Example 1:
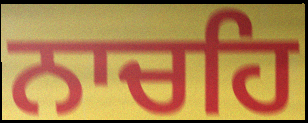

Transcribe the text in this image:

ਨਾਚਹਿ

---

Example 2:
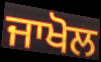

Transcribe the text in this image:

ਜਾਖੋਲ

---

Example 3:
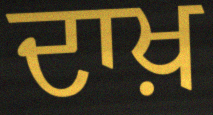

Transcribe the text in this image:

ਦਾਖ਼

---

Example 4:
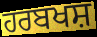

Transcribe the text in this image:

ਹਰਬਖਸ਼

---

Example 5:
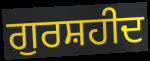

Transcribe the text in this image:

ਗੁਰਸ਼ਹੀਦ